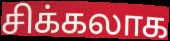
சிக்கலாக